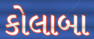
કોલાબા